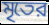
মৃতের